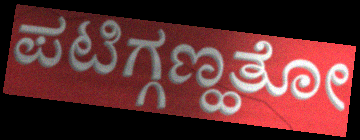
ಪಟಿಗ್ಗಣ್ಹತೋ